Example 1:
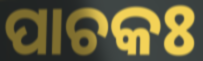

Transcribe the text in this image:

ପାଚକଃ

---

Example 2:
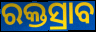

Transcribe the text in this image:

ରକ୍ତସ୍ରାବ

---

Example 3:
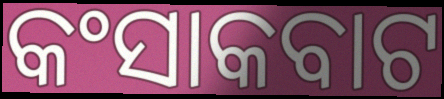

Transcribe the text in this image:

କଂସାକବାଟ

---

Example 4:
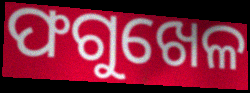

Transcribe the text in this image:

ଫଗୁଖେଳ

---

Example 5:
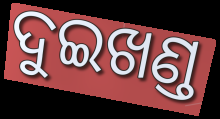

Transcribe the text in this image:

ଦୁଇଖଣ୍ଡ